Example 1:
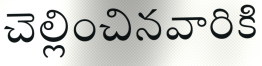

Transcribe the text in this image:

చెల్లించినవారికి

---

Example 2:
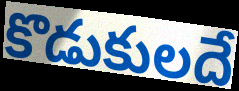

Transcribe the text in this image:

కొడుకులదే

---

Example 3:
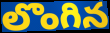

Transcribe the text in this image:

లొంగిన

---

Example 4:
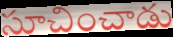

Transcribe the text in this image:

సూచించాడు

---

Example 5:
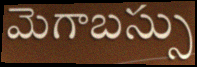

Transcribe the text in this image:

మెగాబస్సు